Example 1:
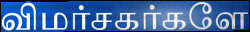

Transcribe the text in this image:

விமர்சகர்களே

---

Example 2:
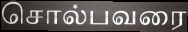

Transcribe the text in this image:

சொல்பவரை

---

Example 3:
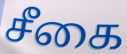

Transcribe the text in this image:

சீகை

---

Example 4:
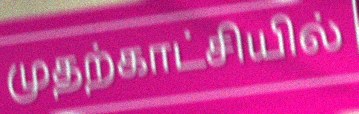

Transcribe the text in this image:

முதற்காட்சியில்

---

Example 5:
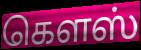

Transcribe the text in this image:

கௌஸ்